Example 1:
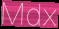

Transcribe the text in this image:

Mdx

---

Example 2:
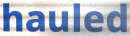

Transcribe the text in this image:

hauled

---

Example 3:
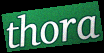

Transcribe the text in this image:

thora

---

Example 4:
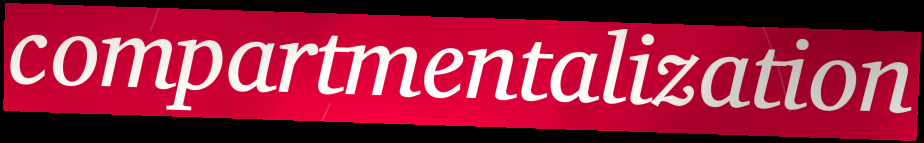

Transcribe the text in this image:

compartmentalization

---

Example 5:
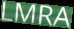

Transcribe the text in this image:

LMRA